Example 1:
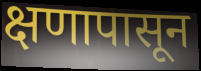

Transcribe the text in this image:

क्षणापासून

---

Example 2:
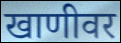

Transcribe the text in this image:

खाणीवर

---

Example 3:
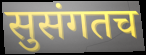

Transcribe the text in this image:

सुसंगतच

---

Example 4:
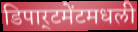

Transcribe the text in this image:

डिपार्टमेंटमधली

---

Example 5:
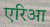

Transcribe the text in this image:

एरिआ